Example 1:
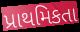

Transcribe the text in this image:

પ્રાથમિકતા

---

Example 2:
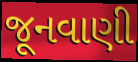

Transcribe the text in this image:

જૂનવાણી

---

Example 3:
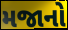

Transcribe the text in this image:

મજાનો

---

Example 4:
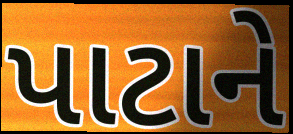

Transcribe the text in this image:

પાટાને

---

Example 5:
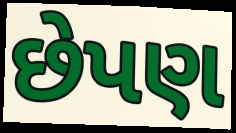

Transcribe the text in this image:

છેપણ